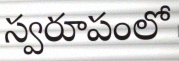
స్వరూపంలో